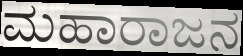
ಮಹಾರಾಜನ